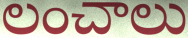
లంచాలు